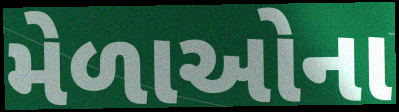
મેળાઓના